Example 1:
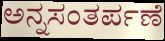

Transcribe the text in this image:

ಅನ್ನಸಂತರ್ಪಣೆ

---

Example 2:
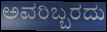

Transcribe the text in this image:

ಅವರಿಬ್ಬರದು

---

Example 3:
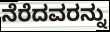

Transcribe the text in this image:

ನೆರೆದವರನ್ನು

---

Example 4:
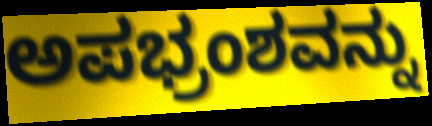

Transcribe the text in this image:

ಅಪಭ್ರಂಶವನ್ನು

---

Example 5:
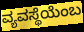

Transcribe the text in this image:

ವ್ಯವಸ್ಥೆಯೆಂಬ